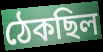
ঠেকছিল